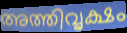
അത്തിവൃക്ഷം